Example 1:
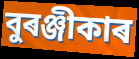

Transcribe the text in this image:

বুৰঞ্জীকাৰ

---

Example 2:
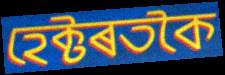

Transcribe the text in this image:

হেক্টৰতকৈ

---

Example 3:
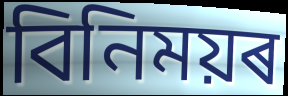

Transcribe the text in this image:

বিনিময়ৰ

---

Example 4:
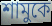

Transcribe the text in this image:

শামুকে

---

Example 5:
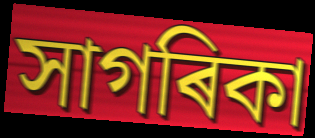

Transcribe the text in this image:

সাগৰিকা